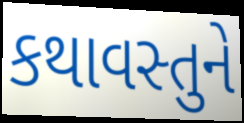
કથાવસ્તુને